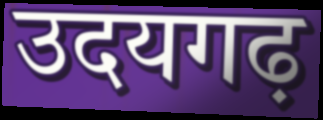
उदयगढ़